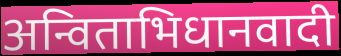
अन्विताभिधानवादी